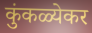
कुंकळ्येकर